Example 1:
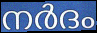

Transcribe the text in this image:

നർദം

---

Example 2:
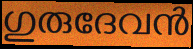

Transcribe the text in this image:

ഗുരുദേവൻ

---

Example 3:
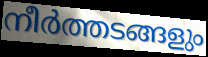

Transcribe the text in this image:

നീർത്തടങ്ങളും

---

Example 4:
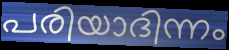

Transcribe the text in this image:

പരിയാദിന്നം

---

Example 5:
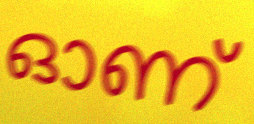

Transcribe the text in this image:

ഓണ്